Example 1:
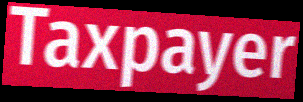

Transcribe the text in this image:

Taxpayer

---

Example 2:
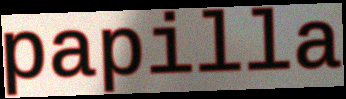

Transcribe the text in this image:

papilla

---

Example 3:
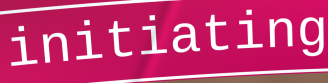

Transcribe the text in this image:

initiating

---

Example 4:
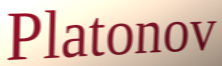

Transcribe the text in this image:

Platonov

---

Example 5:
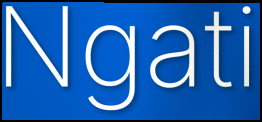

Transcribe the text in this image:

Ngati